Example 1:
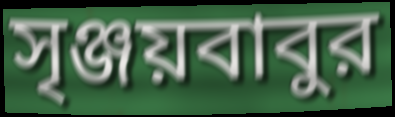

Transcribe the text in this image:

সৃঞ্জয়বাবুর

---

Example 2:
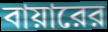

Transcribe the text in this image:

বায়ারের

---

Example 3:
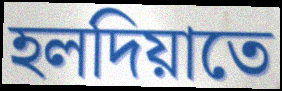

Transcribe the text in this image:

হলদিয়াতে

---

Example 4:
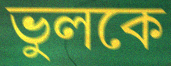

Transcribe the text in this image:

ভুলকে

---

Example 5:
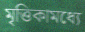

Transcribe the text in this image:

মৃত্তিকামধ্যে